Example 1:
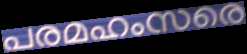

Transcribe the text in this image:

പരമഹംസരെ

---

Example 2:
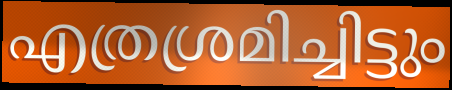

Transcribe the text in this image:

എത്രശ്രമിച്ചിട്ടും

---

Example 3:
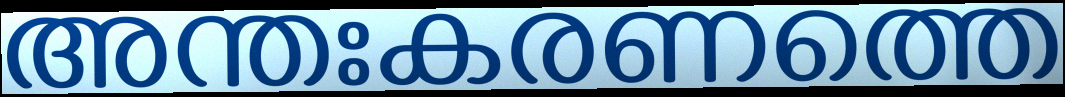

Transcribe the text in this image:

അന്തഃകരണത്തെ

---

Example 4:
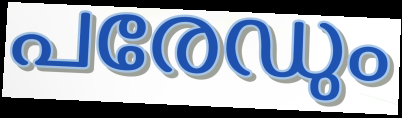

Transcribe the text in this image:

പരേഡും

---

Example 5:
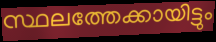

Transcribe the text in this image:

സ്ഥലത്തേക്കായിട്ടും